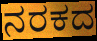
ನರಕದ